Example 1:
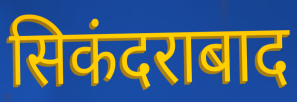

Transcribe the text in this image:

सिकंदराबाद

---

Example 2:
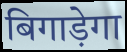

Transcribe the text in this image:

बिगाड़ेगा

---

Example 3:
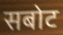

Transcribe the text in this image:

सबोट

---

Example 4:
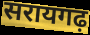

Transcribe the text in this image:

सरायगढ़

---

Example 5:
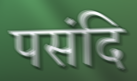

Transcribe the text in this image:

पसंदि